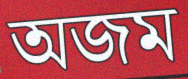
অজম